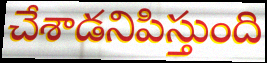
చేశాడనిపిస్తుంది